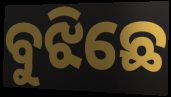
ବୁଝିଛେ